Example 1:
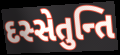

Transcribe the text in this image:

દસ્સેતુન્તિ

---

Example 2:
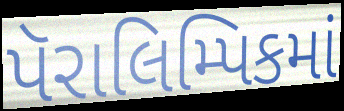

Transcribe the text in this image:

પૅરાલિમ્પિકમાં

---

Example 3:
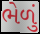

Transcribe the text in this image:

ભેળું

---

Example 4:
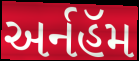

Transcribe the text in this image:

અર્નહૅમ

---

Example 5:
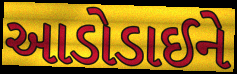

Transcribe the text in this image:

આડોડાઈને